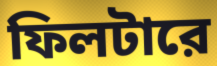
ফিলটারে